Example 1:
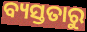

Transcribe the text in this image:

ବ୍ୟସ୍ତତାରୁ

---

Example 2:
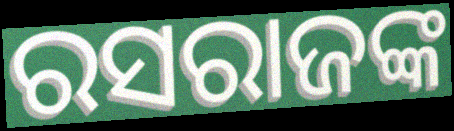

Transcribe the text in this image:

ରସରାଜଙ୍କ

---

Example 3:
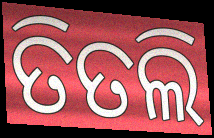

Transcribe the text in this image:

ତିତଲି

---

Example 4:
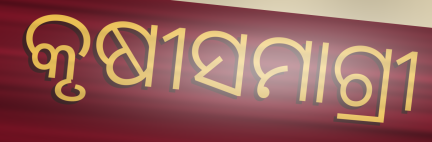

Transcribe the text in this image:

କୃଷୀସମାଗ୍ରୀ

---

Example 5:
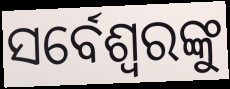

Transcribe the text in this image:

ସର୍ବେଶ୍ୱରଙ୍କୁ